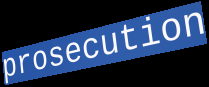
prosecution